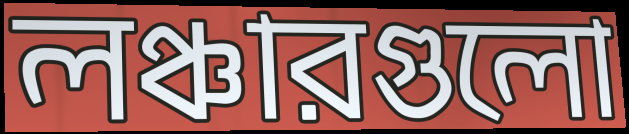
লঞ্চারগুলো